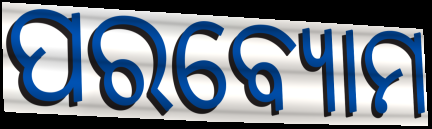
ପରବ୍ୟୋମ